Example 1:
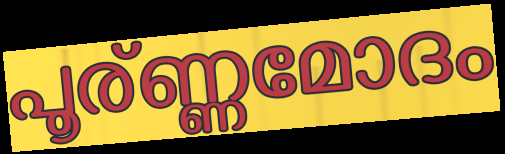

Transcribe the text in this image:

പൂര്ണ്ണമോദം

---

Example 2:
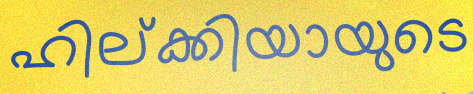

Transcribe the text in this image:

ഹില്ക്കിയായുടെ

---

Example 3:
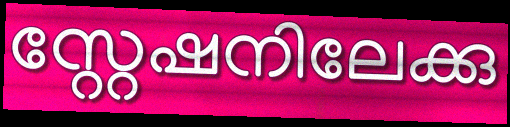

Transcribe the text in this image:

സ്റ്റേഷനിലേക്കു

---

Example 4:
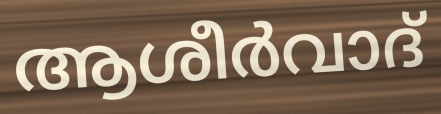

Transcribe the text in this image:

ആശീർവാദ്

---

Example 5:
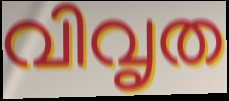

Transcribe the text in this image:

വിവൃത